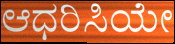
ಆಧರಿಸಿಯೇ